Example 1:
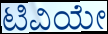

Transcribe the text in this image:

ಟಿವಿಯೇ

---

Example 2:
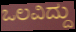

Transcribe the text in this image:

ಒಲವಿದ್ದು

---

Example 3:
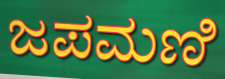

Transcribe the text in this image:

ಜಪಮಣಿ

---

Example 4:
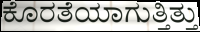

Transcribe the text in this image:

ಕೊರತೆಯಾಗುತ್ತಿತ್ತು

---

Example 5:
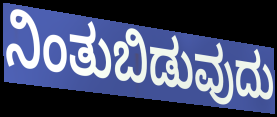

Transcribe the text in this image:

ನಿಂತುಬಿಡುವುದು